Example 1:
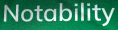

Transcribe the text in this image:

Notability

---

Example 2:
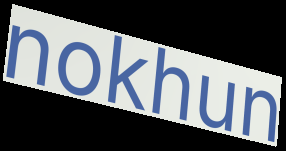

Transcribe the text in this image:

nokhun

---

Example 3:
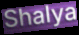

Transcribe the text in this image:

Shalya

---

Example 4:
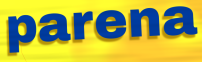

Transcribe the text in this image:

parena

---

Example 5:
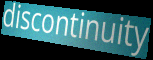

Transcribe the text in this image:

discontinuity